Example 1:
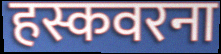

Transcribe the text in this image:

हस्कवरना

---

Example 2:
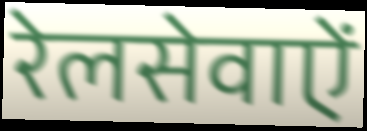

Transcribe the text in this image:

रेलसेवाऐं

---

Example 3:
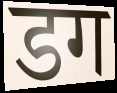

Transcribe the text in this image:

डग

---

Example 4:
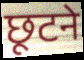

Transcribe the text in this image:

छूटने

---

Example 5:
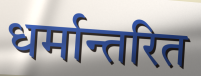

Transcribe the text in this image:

धर्मान्तरित